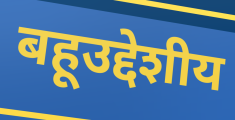
बहूउद्देशीय